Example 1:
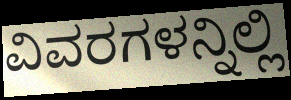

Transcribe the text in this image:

ವಿವರಗಳನ್ನಿಲ್ಲಿ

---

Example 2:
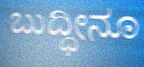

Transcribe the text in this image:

ಬುದ್ಧೀನೂ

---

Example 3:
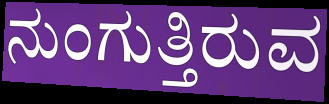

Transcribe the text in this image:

ನುಂಗುತ್ತಿರುವ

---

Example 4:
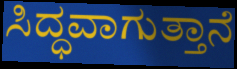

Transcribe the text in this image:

ಸಿದ್ಧವಾಗುತ್ತಾನೆ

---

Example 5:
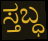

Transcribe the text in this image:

ಸ್ತಬ್ಧ